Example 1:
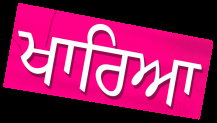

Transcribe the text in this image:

ਖਾਰਿਆ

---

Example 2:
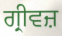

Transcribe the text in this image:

ਗ੍ਰੀਵਜ਼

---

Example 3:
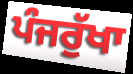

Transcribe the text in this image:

ਪੰਜਰੁੱਖਾ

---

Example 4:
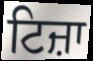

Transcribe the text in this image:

ਟਿਜ਼ਾ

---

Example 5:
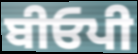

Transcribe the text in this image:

ਬੀਓਪੀ